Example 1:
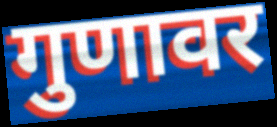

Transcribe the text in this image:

गुणावर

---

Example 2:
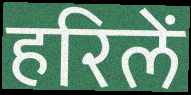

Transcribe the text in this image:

हरिलें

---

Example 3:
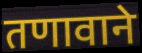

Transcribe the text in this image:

तणावाने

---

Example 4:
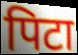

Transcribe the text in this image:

पिटा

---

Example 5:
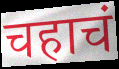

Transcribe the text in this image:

चहाचं